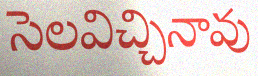
సెలవిచ్చినావు